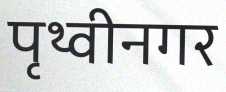
पृथ्वीनगर